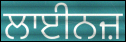
ਲਾਈਨਜ਼